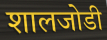
शालजोडी